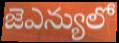
జెఎన్యులో